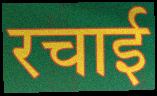
रचाई